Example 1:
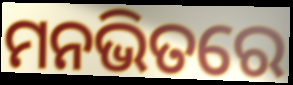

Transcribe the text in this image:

ମନଭିତରେ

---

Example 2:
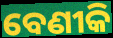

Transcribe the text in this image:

ବେଣୀକି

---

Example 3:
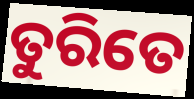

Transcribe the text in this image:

ତୁରିତେ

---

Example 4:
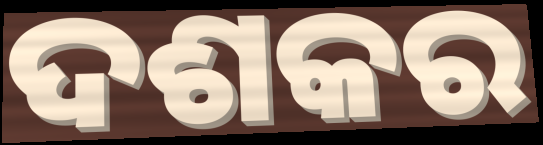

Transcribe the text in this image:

ଦଶକର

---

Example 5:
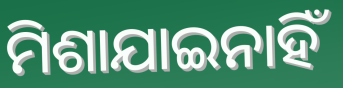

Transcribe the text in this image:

ମିଶାଯାଇନାହିଁ